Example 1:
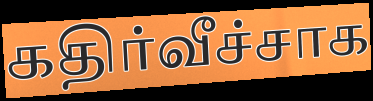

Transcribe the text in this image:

கதிர்வீச்சாக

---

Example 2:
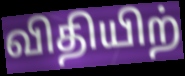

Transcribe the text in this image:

விதியிற்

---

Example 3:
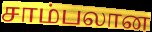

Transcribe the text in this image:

சாம்பலான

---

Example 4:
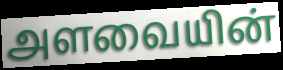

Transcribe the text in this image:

அளவையின்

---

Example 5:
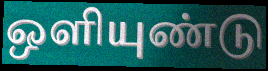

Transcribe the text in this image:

ஒளியுண்டு